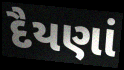
દૈયણાં